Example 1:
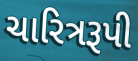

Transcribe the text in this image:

ચારિત્રરૂપી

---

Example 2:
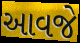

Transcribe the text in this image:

આવજે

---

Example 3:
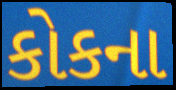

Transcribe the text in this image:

કોકના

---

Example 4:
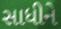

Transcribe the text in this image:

સાધીને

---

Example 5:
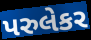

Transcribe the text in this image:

પરુલેકર